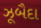
ઝૂબૈદા